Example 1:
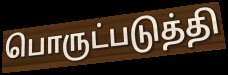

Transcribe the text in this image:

பொருட்படுத்தி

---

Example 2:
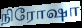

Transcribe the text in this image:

நிரோஷா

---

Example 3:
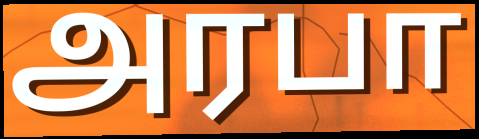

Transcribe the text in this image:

அரபா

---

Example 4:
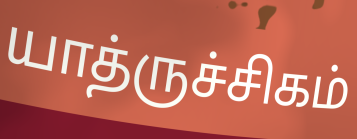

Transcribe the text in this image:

யாத்ருச்சிகம்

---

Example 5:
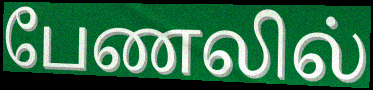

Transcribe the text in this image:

பேணலில்